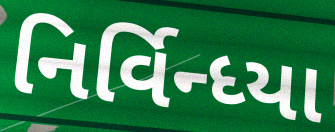
નિર્વિન્ધ્યા